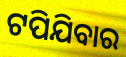
ଟପିଯିବାର